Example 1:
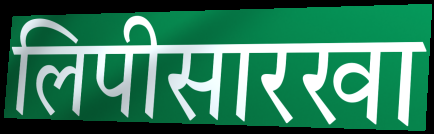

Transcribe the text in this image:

लिपीसारखा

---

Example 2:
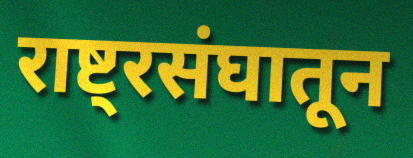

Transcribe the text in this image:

राष्ट्रसंघातून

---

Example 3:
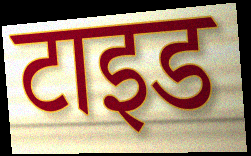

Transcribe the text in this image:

टाइड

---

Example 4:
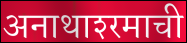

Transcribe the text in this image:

अनाथाश्रमाची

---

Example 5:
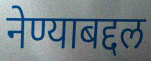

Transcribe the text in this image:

नेण्याबद्दल